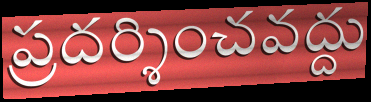
ప్రదర్శించవద్దు